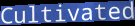
Cultivated